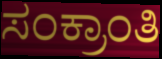
ಸಂಕ್ರಾಂತಿ